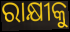
ରାକ୍ଷୀକୁ